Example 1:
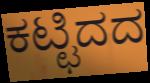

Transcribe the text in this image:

ಕಟ್ಟಿದದ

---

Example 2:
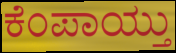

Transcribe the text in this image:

ಕೆಂಪಾಯ್ತು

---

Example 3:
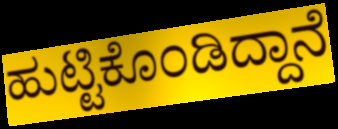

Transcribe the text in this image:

ಹುಟ್ಟಿಕೊಂಡಿದ್ದಾನೆ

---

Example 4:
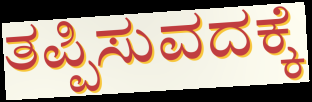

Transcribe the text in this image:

ತಪ್ಪಿಸುವದಕ್ಕೆ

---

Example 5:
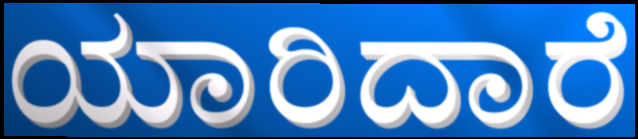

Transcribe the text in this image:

ಯಾರಿದಾರೆ